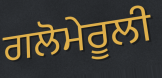
ਗਲੋਮੇਰੂਲੀ